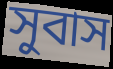
সুবাস